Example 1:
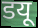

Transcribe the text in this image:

डयू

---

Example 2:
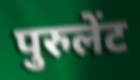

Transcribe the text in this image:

पुरुलेंट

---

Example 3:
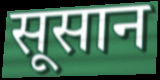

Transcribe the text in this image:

सूसान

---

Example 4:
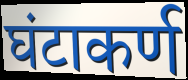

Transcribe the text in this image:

घंटाकर्ण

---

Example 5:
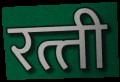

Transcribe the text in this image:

रत्‍ती